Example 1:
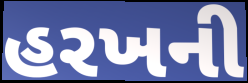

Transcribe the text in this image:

હરખની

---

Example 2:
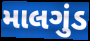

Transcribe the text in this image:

માલગુંડ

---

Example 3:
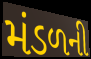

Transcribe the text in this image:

મંડળની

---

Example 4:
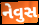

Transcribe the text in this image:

નેવુસ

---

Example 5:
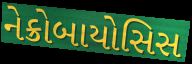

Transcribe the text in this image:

નેક્રોબાયોસિસ